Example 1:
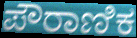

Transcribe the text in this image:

ಪೌರಾಣಿಕ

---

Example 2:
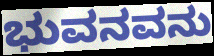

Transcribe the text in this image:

ಭುವನವನು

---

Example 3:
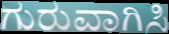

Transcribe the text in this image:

ಗುರುವಾಗಿಸಿ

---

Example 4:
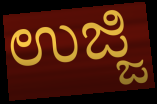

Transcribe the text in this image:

ಉಜ್ಜಿ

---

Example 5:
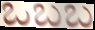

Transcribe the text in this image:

ಒಬಬ